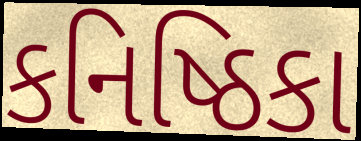
કનિષ્ઠિકા